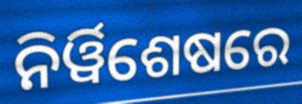
ନିର୍ୱିଶେଷରେ